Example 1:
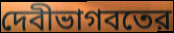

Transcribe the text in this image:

দেবীভাগবতের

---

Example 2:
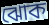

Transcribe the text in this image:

ঝোক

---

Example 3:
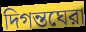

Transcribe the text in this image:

দিগন্তঘেরা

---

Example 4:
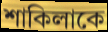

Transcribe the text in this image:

শাকিলাকে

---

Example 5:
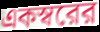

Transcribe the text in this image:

একস্বরের